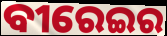
ବୀରେଇର